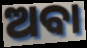
ଅବା